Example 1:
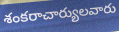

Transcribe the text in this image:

శంకరాచార్యులవారు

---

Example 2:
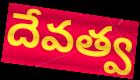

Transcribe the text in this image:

దేవత్వ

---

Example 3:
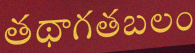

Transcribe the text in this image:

తథాగతబలం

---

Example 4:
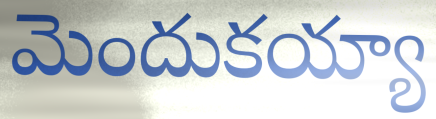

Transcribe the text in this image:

మెందుకయ్యా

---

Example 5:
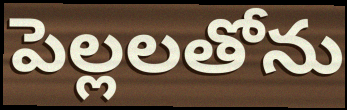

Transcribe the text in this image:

పెల్లలతోను